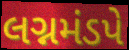
લગ્નમંડપે